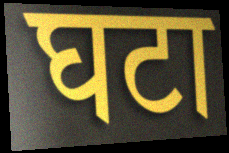
घटा